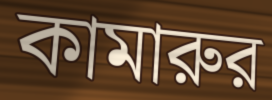
কামারুর